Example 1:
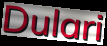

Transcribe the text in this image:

Dulari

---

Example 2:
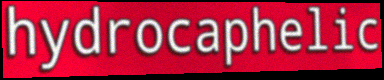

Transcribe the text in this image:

hydrocaphelic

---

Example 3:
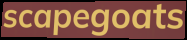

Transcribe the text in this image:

scapegoats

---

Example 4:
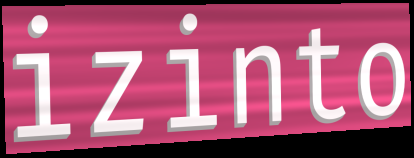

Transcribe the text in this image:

izinto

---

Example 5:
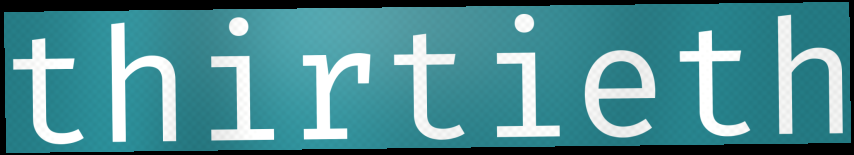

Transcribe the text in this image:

thirtieth